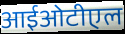
आईओटीएल